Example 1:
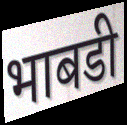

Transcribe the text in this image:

भाबडी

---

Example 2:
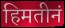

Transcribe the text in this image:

हिमतीनं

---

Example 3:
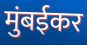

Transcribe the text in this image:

मुंबईकर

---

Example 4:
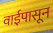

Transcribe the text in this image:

वाईपासून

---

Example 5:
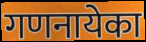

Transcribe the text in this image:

गणनायेका